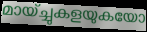
മായ്ച്ചുകളയുകയോ